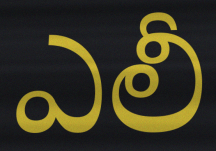
ఎలీ